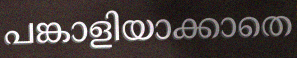
പങ്കാളിയാക്കാതെ